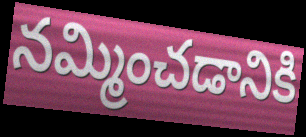
నమ్మించడానికి